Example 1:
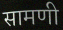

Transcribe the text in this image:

सामणी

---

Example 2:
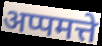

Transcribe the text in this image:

अप्पमत्ते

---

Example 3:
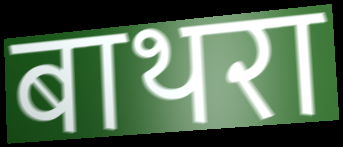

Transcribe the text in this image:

बाथरा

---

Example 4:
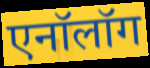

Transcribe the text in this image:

एनॉलॉग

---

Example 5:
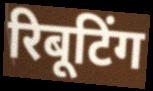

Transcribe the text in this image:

रिबूटिंग